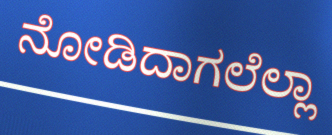
ನೋಡಿದಾಗಲೆಲ್ಲಾ